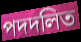
পদদলিত